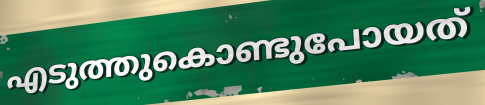
എടുത്തുകൊണ്ടുപോയത്